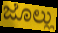
ಜೊಲ್ಲು